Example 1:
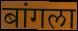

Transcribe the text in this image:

बांगला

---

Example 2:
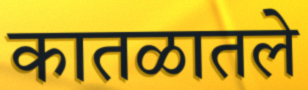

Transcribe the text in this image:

कातळातले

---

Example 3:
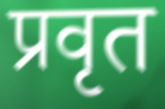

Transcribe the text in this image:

प्रवृत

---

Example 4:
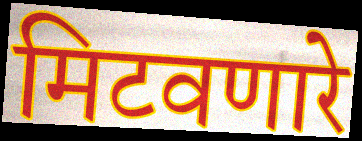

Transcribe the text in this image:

मिटवणारे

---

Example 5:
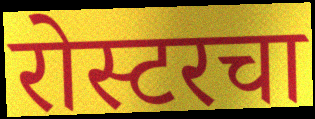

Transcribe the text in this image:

रोस्टरचा